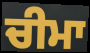
ਚੀਮਾ